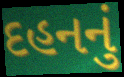
દહનનું